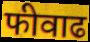
फीवाढ